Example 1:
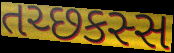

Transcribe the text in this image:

તચ્છકસ્સ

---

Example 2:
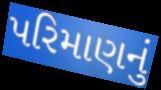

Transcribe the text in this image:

પરિમાણનું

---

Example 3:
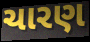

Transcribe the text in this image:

ચારણ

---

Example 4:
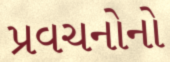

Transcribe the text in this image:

પ્રવચનોનો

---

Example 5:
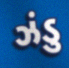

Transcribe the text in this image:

ઝંડુ